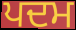
ਪਦਮ